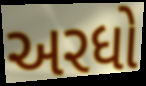
અરધો